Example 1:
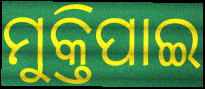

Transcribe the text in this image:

ମୁକ୍ତିପାଇ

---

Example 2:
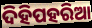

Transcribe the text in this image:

ଦିହିପହରିଆ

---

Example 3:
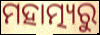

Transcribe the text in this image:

ମହାତ୍ମ୍ୟରୁ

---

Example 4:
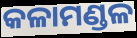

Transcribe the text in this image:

କଳାମଣ୍ଡଳ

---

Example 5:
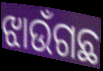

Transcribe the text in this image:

ଝାଉଁଗଛ